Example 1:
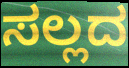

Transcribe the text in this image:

ಸಲ್ಲದ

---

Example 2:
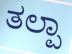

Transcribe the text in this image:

ತಲ್ಪಾ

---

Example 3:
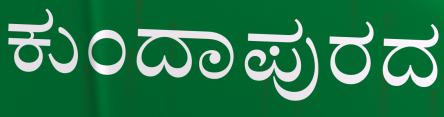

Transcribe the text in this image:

ಕುಂದಾಪುರದ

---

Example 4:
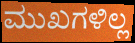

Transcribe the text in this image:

ಮುಖಗಳಿಲ್ಲ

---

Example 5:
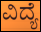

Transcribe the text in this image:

ವಿದ್ಯೆ